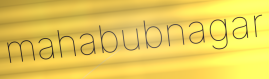
mahabubnagar